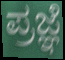
ಪ್ರಜ್ಞೆ